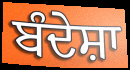
ਬੰਦੇਸ਼ਾ